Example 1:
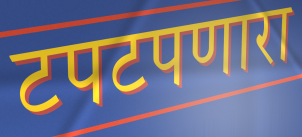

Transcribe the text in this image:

टपटपणारा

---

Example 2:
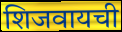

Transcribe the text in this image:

शिजवायची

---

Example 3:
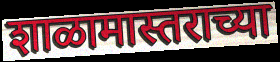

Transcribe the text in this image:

शाळामास्तराच्या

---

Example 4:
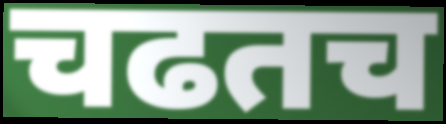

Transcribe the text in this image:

चढतच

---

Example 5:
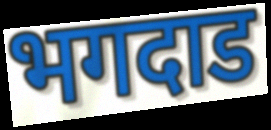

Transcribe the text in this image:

भगदाड